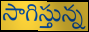
సాగిస్తున్న